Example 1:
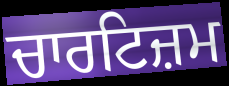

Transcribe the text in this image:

ਚਾਰਟਿਜ਼ਮ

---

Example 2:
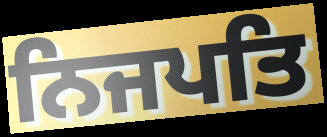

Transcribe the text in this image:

ਨਿਜਪਤਿ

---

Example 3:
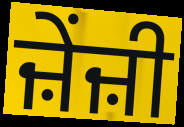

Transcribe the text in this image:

ਜ਼ੇਂਜ਼ੀ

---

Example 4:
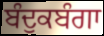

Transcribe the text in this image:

ਬੰਦੁਕਬੰਗਾ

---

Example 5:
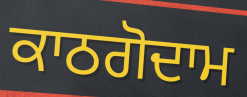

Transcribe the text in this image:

ਕਾਠਗੋਦਾਮ